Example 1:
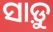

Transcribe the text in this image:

ସାଡ଼ୁ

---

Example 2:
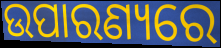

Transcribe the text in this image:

ଉପାରଣ୍ୟରେ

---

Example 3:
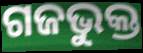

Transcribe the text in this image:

ଗଜଭୁକ୍ତ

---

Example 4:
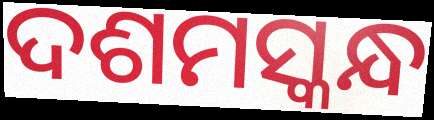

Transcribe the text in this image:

ଦଶମସ୍କନ୍ଧ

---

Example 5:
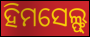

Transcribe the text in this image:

ହିମସେଲ୍ଫ୍